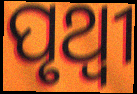
ପୃଥ୍ଵୀ